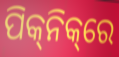
ପିକ୍‌ନିକ୍‌ରେ